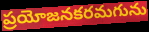
ప్రయోజనకరమగును